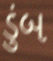
ડુંબ